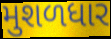
મુશળધાર